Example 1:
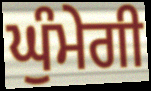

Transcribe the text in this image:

ਘੁੰਮੇਗੀ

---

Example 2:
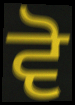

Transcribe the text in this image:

ਵੋ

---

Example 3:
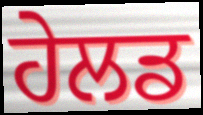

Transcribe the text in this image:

ਹੇਲਡ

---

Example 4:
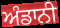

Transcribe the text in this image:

ਅੰਡਾਨੀ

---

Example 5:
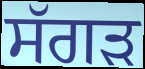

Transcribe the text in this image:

ਸੱਗੜ